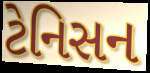
ટેનિસન